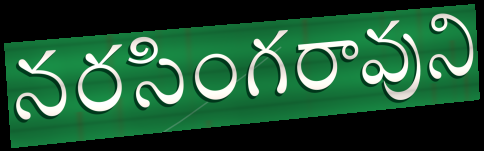
నరసింగరావుని